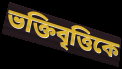
ভক্তিবৃত্তিকে